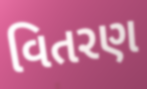
વિતરણ